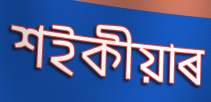
শইকীয়াৰ